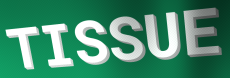
TISSUE